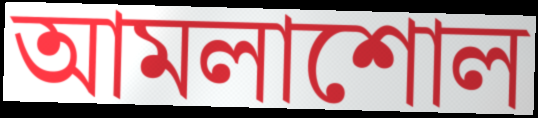
আমলাশোল